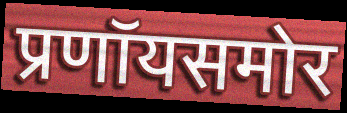
प्रणॉयसमोर